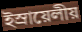
ইস্রায়েলীয়